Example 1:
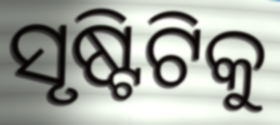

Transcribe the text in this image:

ସୃଷ୍ଟିଟିକୁ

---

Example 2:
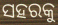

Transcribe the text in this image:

ସହରକୁ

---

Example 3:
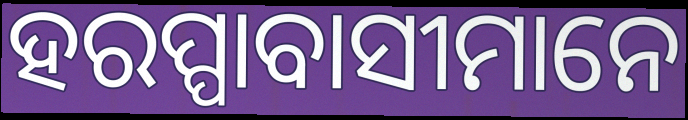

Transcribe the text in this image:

ହରପ୍ପାବାସୀମାନେ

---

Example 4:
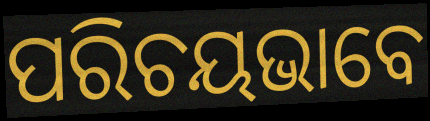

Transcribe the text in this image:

ପରିଚୟଭାବେ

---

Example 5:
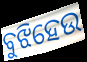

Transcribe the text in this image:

ବୁଝିହେଉ